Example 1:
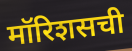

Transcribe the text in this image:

मॉरिशसची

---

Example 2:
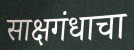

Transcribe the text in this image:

साक्षगंधाचा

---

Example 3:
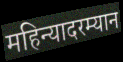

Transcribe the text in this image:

महिन्यादरम्यान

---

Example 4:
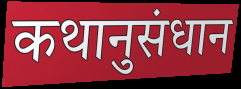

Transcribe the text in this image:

कथानुसंधान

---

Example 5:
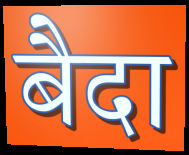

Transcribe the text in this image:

बैदा